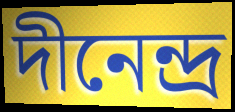
দীনেন্দ্র